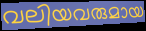
വലിയവരുമായ